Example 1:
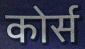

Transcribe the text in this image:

कोर्स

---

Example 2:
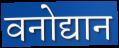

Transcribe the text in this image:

वनोद्यान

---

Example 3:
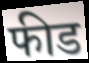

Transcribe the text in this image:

फीड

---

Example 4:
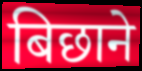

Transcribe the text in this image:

बिछाने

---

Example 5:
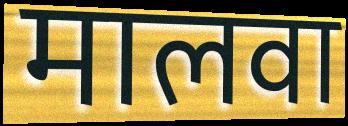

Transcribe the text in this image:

मालवा